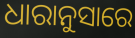
ଧାରାନୁସାରେ